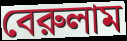
বেরুলাম